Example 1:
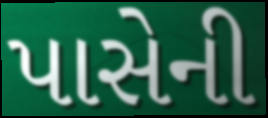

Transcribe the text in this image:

પાસેની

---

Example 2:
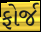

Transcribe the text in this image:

ફોર્જ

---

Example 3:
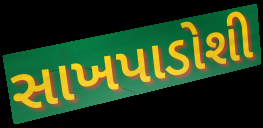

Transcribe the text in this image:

સાખપાડોશી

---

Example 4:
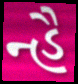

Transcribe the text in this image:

ન્હૈ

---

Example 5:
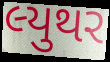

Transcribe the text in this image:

લ્યુથર